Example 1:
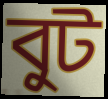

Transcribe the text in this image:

বুট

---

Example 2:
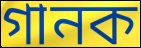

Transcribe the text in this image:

গানক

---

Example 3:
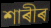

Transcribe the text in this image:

শাৰীৰ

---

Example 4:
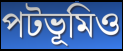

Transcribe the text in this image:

পটভূমিও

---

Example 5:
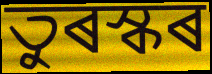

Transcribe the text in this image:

তুৰস্কৰ